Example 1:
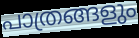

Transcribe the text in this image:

പാത്രങ്ങളും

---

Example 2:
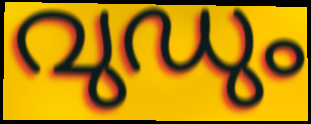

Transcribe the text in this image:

വുഡും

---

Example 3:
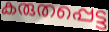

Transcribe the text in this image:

കരുതപ്പെട്ട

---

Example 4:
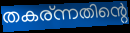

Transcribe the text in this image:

തകര്ന്നതിന്റെ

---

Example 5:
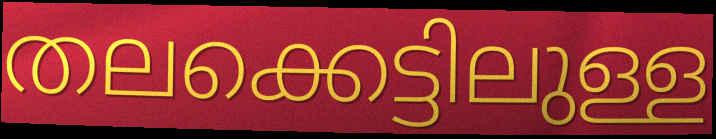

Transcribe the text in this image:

തലക്കെട്ടിലുള്ള